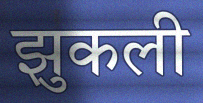
झुकली